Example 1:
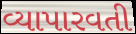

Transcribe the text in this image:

વ્યાપારવતી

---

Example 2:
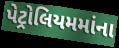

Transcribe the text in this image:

પેટ્રોલિયમમાંના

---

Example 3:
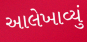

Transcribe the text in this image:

આલેખાવ્યું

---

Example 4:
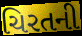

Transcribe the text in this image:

ચિરતની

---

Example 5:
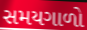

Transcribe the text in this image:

સમયગાળો